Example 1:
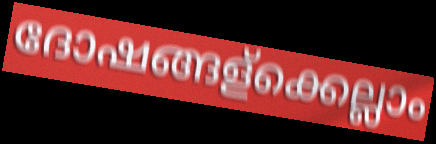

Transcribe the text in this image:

ദോഷങ്ങള്ക്കെല്ലാം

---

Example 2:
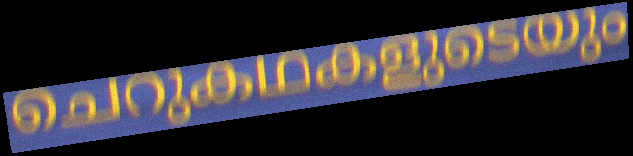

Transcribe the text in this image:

ചെറുകഥകളുടെയും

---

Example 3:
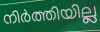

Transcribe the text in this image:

നിർത്തിയില്ല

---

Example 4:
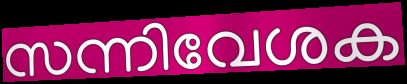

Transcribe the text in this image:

സന്നിവേശക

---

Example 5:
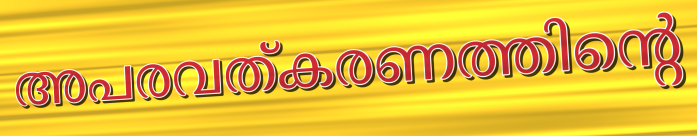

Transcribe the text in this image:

അപരവത്കരണത്തിന്റെ